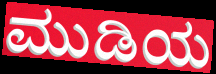
ಮುಡಿಯ